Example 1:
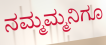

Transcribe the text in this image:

ನಮ್ಮಮ್ಮನಿಗೂ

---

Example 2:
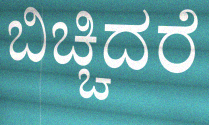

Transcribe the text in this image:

ಬಿಚ್ಚಿದರೆ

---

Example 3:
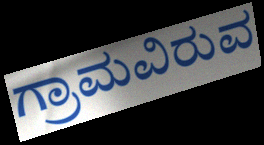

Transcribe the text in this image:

ಗ್ರಾಮವಿರುವ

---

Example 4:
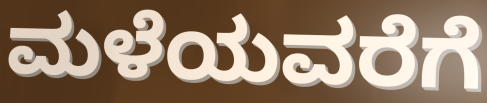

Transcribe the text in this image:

ಮಳೆಯವರೆಗೆ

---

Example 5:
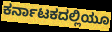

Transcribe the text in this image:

ಕರ್ನಾಟಕದಲ್ಲಿಯೂ